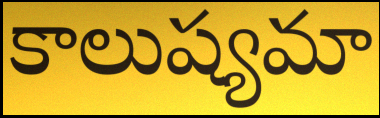
కాలుష్యమా